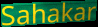
Sahakar